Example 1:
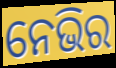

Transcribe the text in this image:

ନେଭିର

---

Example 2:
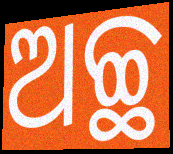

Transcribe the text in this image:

ଅଚ୍ଛ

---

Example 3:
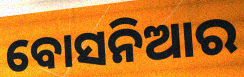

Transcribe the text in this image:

ବୋସନିଆର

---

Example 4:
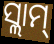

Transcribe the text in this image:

ସ୍ଲାମ୍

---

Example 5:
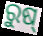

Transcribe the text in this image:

ରୁଷ୍